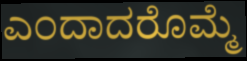
ಎಂದಾದರೊಮ್ಮೆ